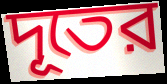
দূতের